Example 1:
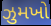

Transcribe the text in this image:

ઝુમખો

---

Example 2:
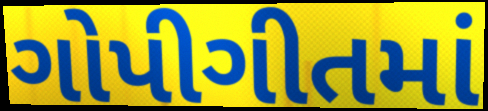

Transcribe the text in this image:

ગોપીગીતમાં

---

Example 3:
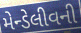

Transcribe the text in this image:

મેન્ડેલીવની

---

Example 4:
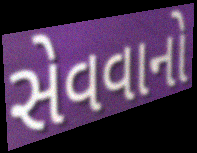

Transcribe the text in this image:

સેવવાનો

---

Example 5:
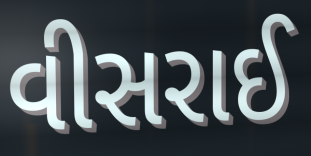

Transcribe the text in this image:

વીસરાઈ